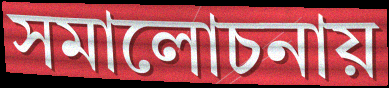
সমালোচনায়